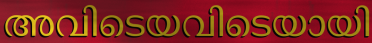
അവിടെയവിടെയായി